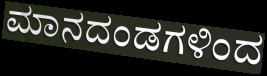
ಮಾನದಂಡಗಳಿಂದ